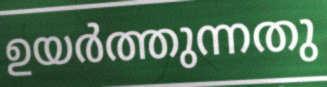
ഉയർത്തുന്നതു